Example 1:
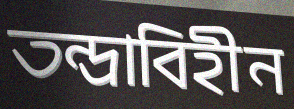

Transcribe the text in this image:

তন্দ্রাবিহীন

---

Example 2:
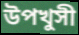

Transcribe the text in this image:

উপখুসী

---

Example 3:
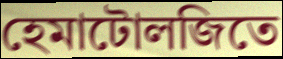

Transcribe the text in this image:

হেমাটোলজিতে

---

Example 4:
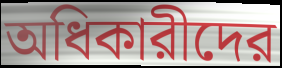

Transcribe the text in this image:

অধিকারীদের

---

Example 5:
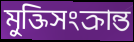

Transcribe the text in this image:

মুক্তিসংক্রান্ত